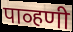
पाव्हणी